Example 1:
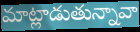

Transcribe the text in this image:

మాట్లాడుతున్నావా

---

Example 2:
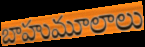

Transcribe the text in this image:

బాహుమూలాలు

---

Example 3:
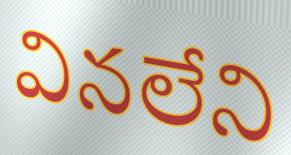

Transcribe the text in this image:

వినలేని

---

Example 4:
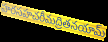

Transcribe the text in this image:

హరసహచరీమద్రితనయామ్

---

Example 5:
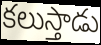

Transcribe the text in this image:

కలుస్తాడు